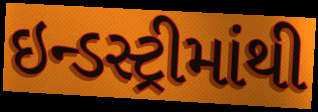
ઇન્ડસ્ટ્રીમાંથી